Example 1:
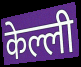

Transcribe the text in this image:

केल्ली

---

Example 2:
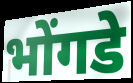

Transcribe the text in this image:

भोंगडे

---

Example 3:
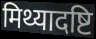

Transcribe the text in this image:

मिथ्यादष्टि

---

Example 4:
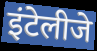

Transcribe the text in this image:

इंटेलीजे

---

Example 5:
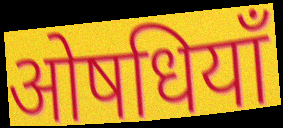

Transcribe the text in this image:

ओषधियाँ